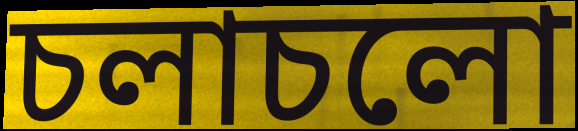
চলাচলো